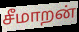
சீமாறன்